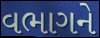
વભાગને